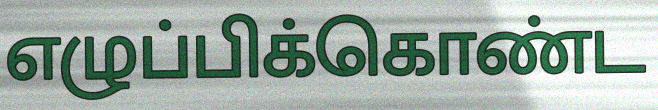
எழுப்பிக்கொண்ட